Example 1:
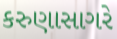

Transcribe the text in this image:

કરુણાસાગરે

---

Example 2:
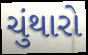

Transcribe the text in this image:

ચુંથારો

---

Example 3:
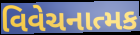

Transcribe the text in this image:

વિવેચનાત્મક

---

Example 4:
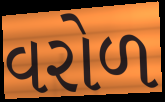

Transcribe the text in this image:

વરોળ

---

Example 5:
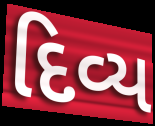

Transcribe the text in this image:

દિવ્ય